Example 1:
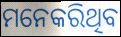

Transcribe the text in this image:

ମନେକରିଥିବ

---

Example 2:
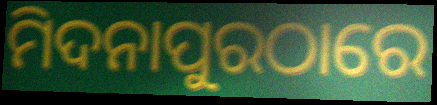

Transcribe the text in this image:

ମିଦନାପୁରଠାରେ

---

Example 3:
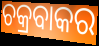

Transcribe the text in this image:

ଚକ୍ରବାକର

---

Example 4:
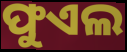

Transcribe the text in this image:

ଫୁଏଲ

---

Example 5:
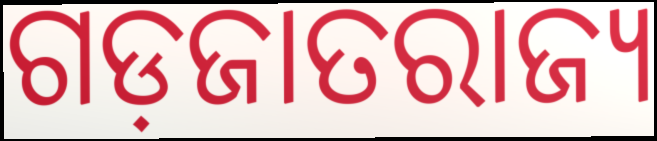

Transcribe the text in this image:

ଗଡ଼ଜାତରାଜ୍ୟ